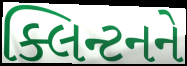
ક્લિન્ટનને